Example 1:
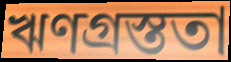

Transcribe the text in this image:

ঋণগ্রস্ততা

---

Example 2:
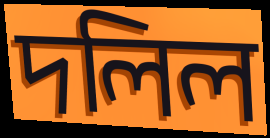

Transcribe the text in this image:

দলিল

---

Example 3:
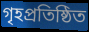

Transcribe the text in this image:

গৃহপ্রতিষ্ঠিত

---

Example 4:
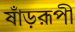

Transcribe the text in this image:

ষাঁড়রূপী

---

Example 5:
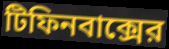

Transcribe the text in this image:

টিফিনবাক্সের